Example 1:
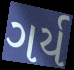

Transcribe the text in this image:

ગર્ય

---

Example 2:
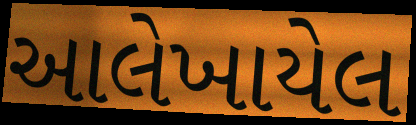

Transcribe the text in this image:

આલેખાયેલ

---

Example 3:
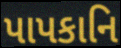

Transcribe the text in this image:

પાપકાનિ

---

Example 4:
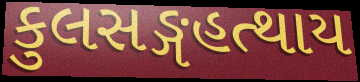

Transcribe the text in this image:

કુલસઙ્ગહત્થાય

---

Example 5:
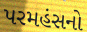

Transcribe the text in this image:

પરમહંસનો